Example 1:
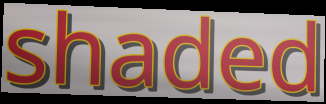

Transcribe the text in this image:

shaded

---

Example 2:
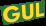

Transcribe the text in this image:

GUL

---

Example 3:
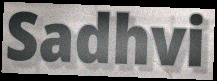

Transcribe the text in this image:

Sadhvi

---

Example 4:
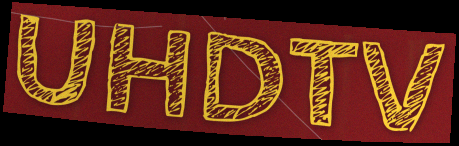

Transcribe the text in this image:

UHDTV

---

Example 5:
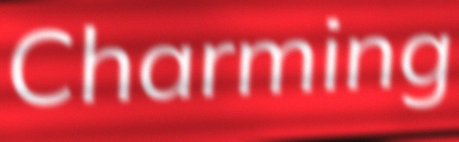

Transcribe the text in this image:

Charming